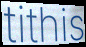
tithis